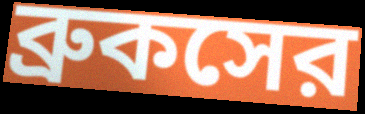
ব্রুকসের